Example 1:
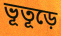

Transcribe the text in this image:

ভূতূড়ে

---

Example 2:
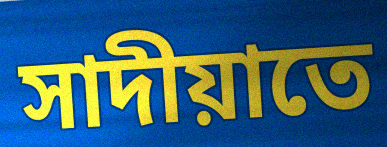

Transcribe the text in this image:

সাদীয়াতে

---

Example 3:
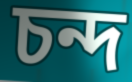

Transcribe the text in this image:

চন্দ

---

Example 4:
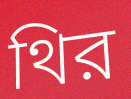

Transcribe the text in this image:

থির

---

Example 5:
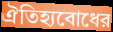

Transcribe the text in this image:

ঐতিহ্যবোধের